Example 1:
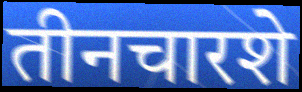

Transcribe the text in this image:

तीनचारशे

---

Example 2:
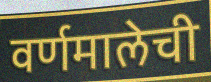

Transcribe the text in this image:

वर्णमालेची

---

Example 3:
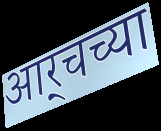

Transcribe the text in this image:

आर्चच्या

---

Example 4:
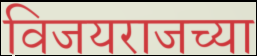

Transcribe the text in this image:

विजयराजच्या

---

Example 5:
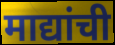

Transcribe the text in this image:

माद्यांची